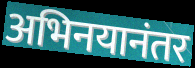
अभिनयानंतर